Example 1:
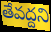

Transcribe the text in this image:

తేవద్దని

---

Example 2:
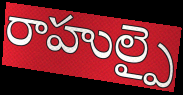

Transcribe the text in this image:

రాహుల్పై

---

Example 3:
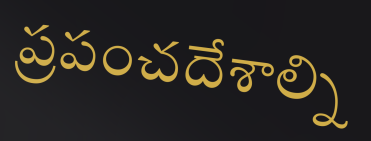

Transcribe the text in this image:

ప్రపంచదేశాల్ని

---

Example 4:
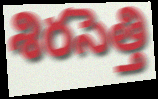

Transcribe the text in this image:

శిరసెత్తి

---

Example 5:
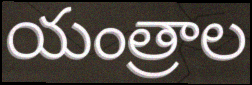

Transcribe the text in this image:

యంత్రాల